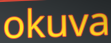
okuva